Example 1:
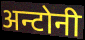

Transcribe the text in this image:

अन्टोनी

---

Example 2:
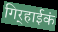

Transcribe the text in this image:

गिर्हाईकं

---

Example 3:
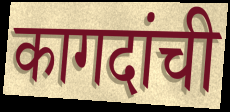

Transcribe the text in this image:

कागदांची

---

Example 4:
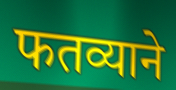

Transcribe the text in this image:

फतव्याने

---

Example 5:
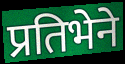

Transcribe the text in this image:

प्रतिभेने